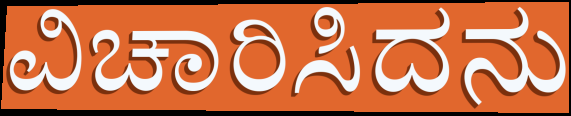
ವಿಚಾರಿಸಿದನು